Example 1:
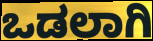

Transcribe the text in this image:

ಒಡಲಾಗಿ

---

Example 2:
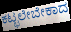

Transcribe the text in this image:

ಕಟ್ಟಲೇಬೇಕಾದ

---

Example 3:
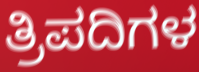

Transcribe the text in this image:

ತ್ರಿಪದಿಗಳ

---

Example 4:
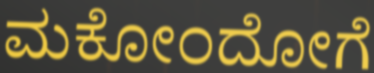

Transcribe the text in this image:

ಮಕೋಂದೋಗೆ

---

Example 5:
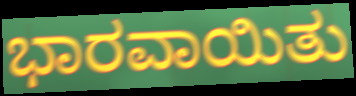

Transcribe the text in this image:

ಭಾರವಾಯಿತು